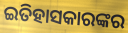
ଇତିହାସକାରଙ୍କର